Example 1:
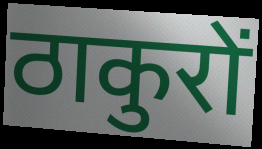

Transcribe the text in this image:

ठाकुरों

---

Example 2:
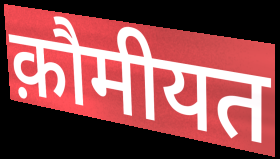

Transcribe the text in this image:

क़ौमीयत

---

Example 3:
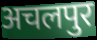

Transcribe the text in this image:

अचलपुर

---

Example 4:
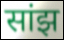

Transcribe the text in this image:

सांझ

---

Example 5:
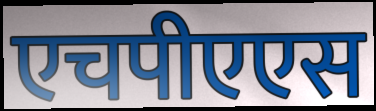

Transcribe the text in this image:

एचपीएएस